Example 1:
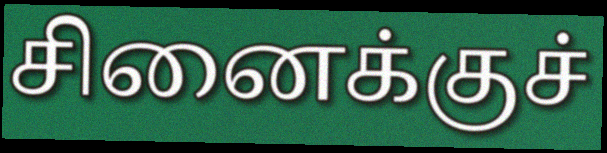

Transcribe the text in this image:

சினைக்குச்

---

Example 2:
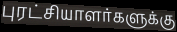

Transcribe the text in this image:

புரட்சியாளர்களுக்கு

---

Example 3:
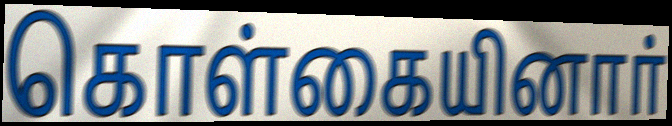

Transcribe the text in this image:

கொள்கையினார்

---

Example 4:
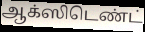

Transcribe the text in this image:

ஆக்ஸிடெண்ட்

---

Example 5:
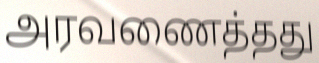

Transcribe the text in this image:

அரவணைத்தது